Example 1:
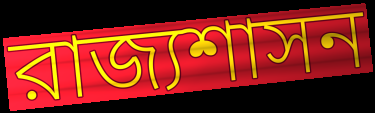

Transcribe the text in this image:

রাজ্যশাসন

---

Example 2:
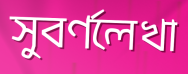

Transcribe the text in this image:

সুবর্ণলেখা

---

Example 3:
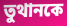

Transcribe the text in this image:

তুথানকে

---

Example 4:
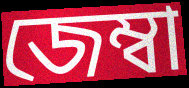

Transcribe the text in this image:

জেম্বা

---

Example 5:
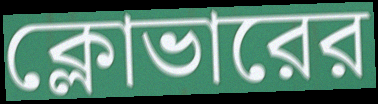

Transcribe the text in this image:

ক্লোভারের